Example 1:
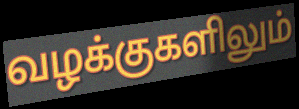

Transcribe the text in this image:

வழக்குகளிலும்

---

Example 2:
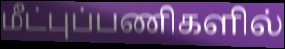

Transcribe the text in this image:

மீட்புப்பணிகளில்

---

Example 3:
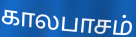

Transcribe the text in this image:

காலபாசம்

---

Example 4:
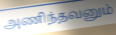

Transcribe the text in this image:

அணிந்தவனும்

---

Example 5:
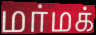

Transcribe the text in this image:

மர்மக்